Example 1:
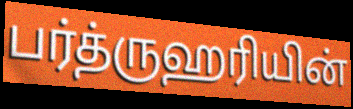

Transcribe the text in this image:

பர்த்ருஹரியின்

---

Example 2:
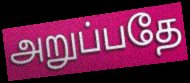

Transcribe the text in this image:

அறுப்பதே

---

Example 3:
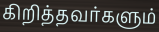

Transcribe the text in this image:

கிறித்தவர்களும்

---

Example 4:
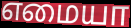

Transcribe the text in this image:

எமையா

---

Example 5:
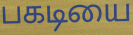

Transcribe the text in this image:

பகடியை